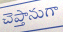
చెప్తానుగా